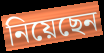
নিয়েছেন